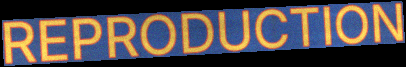
REPRODUCTION